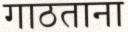
गाठताना